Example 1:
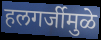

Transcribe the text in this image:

हलगर्जीमुळे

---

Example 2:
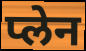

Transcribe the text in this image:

प्लेन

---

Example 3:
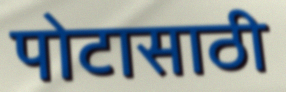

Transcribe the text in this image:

पोटासाठी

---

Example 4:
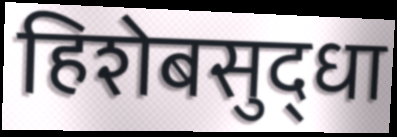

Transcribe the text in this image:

हिशेबसुद्धा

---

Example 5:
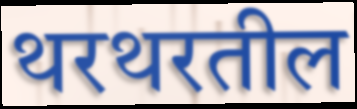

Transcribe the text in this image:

थरथरतील